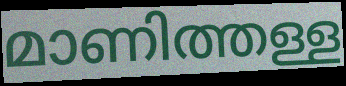
മാണിത്തള്ള